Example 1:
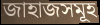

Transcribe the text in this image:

জাহাজসমূহ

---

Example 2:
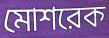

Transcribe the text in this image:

মোশরেক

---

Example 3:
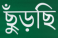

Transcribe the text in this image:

ছুঁড়ছি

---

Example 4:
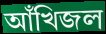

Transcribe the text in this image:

আঁখিজল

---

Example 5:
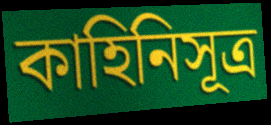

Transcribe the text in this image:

কাহিনিসূত্র